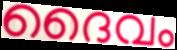
ദൈവം